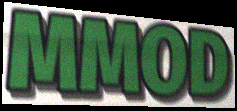
MMOD